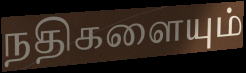
நதிகளையும்